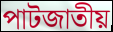
পাটজাতীয়